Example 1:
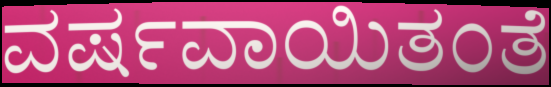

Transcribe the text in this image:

ವರ್ಷವಾಯಿತಂತೆ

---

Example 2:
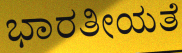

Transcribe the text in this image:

ಭಾರತೀಯತೆ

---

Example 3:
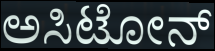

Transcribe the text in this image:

ಅಸಿಟೋನ್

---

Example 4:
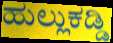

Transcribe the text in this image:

ಹುಲ್ಲುಕಡ್ಡಿ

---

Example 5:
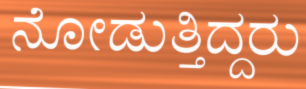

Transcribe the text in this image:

ನೋಡುತ್ತಿದ್ದರು